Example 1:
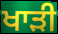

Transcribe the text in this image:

ਖਾੜੀ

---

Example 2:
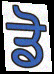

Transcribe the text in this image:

ਡੋ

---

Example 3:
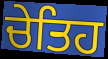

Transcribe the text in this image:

ਚੇਤਿਹ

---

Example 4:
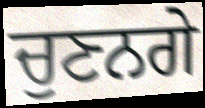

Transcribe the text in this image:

ਚੁਣਨਗੇ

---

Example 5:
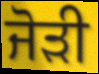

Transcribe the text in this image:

ਜੋੜੀ